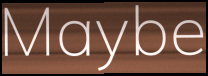
Maybe